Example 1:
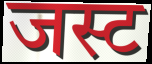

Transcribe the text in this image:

जस्ट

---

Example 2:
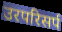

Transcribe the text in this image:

उरपरिसर्प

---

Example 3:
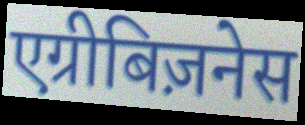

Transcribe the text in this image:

एग्रीबिज़नेस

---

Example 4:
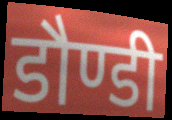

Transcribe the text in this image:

डौण्डी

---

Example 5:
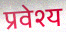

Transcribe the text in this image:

प्रवेश्य